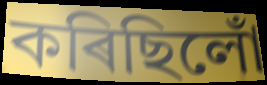
কৰিছিলোঁ